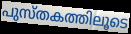
പുസ്തകത്തിലൂടെ